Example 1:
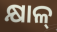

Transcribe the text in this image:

କ୍ଷାଳ୍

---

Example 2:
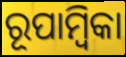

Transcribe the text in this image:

ରୂପାମ୍ୱିକା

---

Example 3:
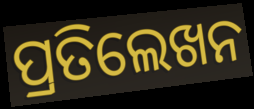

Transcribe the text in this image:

ପ୍ରତିଲେଖନ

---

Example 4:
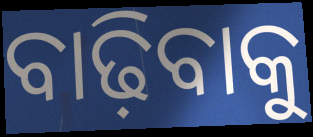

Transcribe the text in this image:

ବାଢ଼ିବାକୁ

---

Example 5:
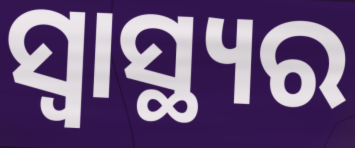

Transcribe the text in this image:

ସ୍ୱାସ୍ଥ୍ୟର